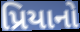
પ્રિયાનો